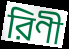
রিণী